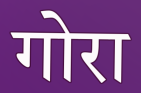
गोरा